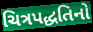
ચિત્રપદ્ધતિનો